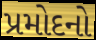
પ્રમોદનો